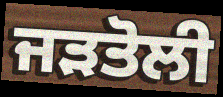
ਜੜਤੋਲੀ